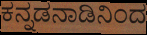
ಕನ್ನಡನಾಡಿನಿಂದ